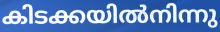
കിടക്കയിൽനിന്നു